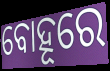
ବୋହୂରେ